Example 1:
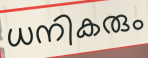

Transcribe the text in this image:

ധനികരും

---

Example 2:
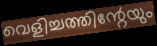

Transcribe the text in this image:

വെളിച്ചത്തിന്റേയും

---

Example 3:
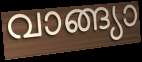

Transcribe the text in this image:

വാങ്ങ്യാ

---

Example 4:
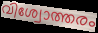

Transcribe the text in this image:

വിശ്വോത്തരം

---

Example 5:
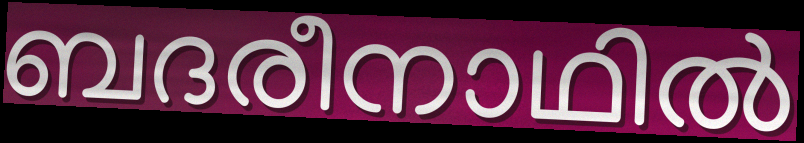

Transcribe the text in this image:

ബദരീനാഥിൽ